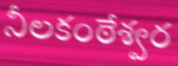
నీలకంఠేశ్వర